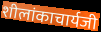
शीलांकाचार्यजी